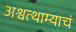
अश्वत्थाम्याचं